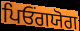
ਪਿਓਂਗਯੋਗ